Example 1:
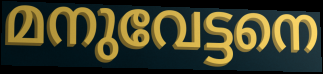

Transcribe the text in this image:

മനുവേട്ടനെ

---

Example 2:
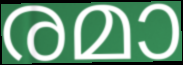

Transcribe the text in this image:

രമാ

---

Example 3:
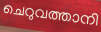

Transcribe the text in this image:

ചെറുവത്താനി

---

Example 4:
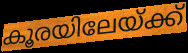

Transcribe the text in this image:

കൂരയിലേയ്ക്ക്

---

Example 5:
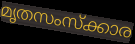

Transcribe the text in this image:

മൃതസംസ്ക്കാര